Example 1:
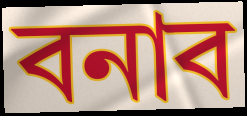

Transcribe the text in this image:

বনাব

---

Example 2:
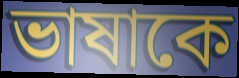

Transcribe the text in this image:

ভাষাকে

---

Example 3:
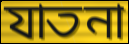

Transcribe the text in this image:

যাতনা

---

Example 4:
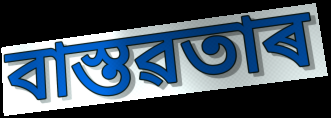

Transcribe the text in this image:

বাস্তৱতাৰ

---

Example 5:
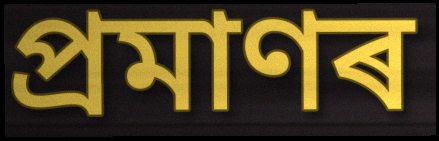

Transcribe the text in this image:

প্ৰমাণৰ